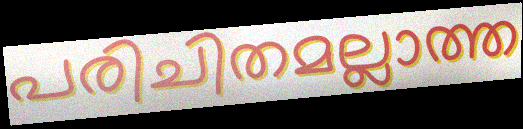
പരിചിതമല്ലാത്ത